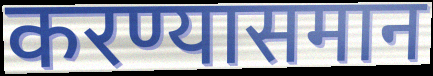
करण्यासमान